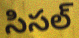
సిసల్